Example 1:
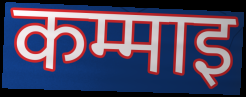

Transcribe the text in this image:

कम्माइ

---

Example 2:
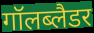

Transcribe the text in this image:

गॉलब्लैडर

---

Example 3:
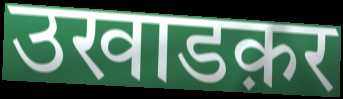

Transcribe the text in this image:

उखाडक़र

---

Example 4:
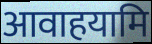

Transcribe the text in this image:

आवाहयामि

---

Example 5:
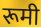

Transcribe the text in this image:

रूमी